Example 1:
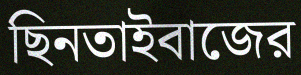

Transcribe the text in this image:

ছিনতাইবাজের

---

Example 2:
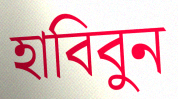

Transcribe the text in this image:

হাবিবুন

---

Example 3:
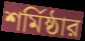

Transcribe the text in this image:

শর্মিষ্ঠার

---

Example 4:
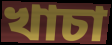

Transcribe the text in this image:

খাচা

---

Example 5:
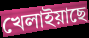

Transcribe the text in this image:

খেলাইয়াছে